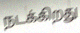
நடக்கிறது